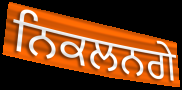
ਨਿਕਲਨਗੇ